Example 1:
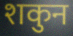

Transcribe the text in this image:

शकुन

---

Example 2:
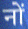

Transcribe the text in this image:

नों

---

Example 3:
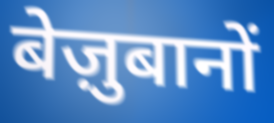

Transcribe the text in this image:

बेज़ुबानों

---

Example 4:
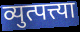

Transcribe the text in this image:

व्युत्पत्त्या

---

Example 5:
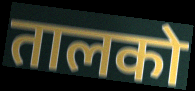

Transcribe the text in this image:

तालको